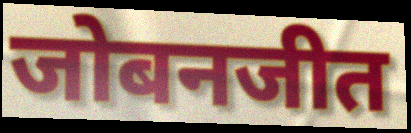
जोबनजीत